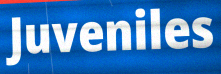
Juveniles